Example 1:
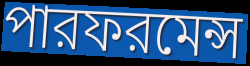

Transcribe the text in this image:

পারফরমেন্স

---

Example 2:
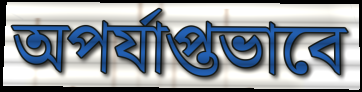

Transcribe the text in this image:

অপর্যাপ্তভাবে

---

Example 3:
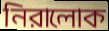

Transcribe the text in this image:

নিরালোক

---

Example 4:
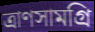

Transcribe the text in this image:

ত্রাণসামগ্রি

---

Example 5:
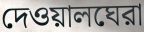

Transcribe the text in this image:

দেওয়ালঘেরা